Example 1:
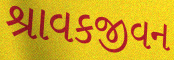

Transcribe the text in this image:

શ્રાવકજીવન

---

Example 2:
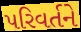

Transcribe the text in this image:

પરિવર્તને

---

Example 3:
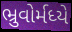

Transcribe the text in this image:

ભ્રુવોર્મધ્યે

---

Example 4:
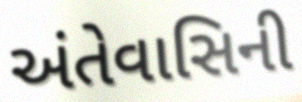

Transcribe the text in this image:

અંતેવાસિની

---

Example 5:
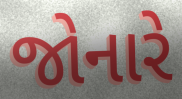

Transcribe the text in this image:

જોનારે